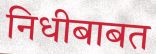
निधीबाबत